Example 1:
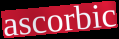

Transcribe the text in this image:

ascorbic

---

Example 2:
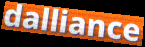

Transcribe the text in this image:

dalliance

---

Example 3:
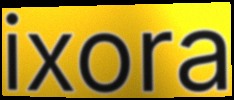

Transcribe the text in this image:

ixora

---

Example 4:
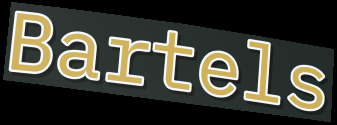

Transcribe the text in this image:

Bartels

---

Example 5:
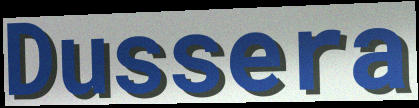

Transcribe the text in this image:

Dussera